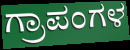
ಗ್ರಾಪಂಗಳ